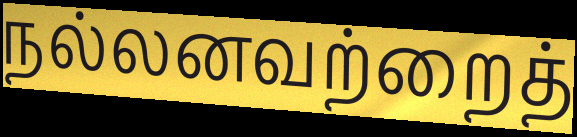
நல்லனவற்றைத்